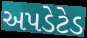
અપડેટેડ